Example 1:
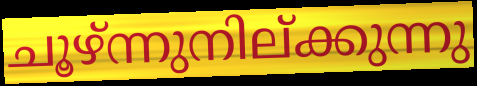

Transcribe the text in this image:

ചൂഴ്ന്നുനില്ക്കുന്നു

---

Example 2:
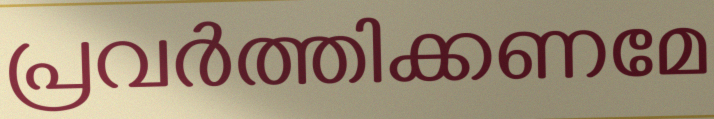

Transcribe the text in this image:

പ്രവർത്തിക്കണമേ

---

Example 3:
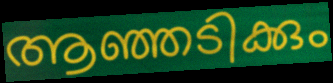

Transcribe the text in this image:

ആഞ്ഞടിക്കും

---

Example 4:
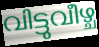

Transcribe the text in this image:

വിട്ടുവീഴ്ച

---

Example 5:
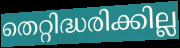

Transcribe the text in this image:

തെറ്റിദ്ധരിക്കില്ല